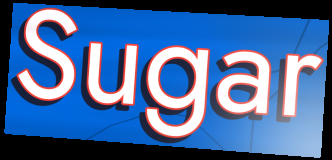
Sugar